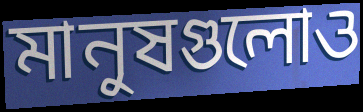
মানুষগুলোও